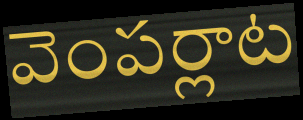
వెంపర్లాట